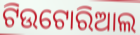
ଟିଉଟୋରିଆଲ